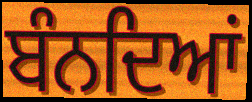
ਬੰਨਦਿਆਂ